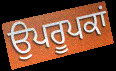
ਉਪਰੂਪਕਾਂ